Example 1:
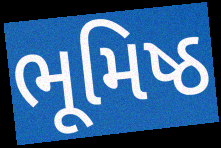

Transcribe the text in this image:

ભૂમિષ્ઠ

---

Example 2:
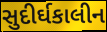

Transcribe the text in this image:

સુદીર્ઘકાલીન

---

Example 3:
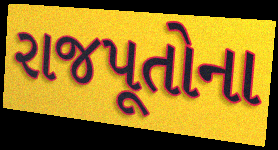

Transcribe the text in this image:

રાજપૂતોના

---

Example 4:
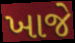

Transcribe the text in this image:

ખાજે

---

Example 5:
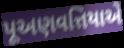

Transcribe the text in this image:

પૂઅણવત્તિયાએ